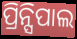
ପ୍ରିନ୍ସିପାଲ